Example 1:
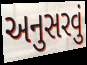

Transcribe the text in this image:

અનુસરવું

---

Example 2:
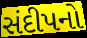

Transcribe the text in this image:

સંદીપનો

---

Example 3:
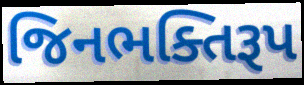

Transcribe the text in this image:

જિનભક્તિરૂપ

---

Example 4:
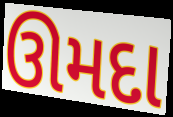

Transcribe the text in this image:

ઊમદા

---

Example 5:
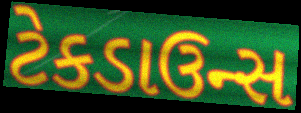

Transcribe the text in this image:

ટેકડાઉન્સ